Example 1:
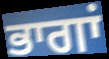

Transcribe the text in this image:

ਭਾਗਾਂ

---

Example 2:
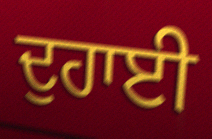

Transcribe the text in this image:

ਦੁਹਾਈ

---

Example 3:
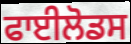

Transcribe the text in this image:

ਫਾਈਲੋਡਸ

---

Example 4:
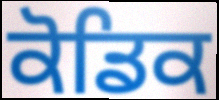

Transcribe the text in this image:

ਕੋਡਿਕ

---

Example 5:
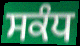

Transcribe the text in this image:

ਸਕੰਧ